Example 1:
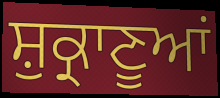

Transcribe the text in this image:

ਸ਼ੁਕ੍ਰਾਣੂਆਂ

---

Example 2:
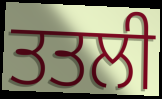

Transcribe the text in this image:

ਤਤਲੀ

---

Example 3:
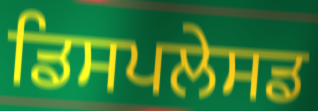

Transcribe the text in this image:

ਡਿਸਪਲੇਸਡ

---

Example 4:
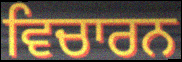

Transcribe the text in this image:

ਵਿਚਾਰਨ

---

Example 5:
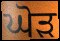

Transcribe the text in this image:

ਘੋੜ